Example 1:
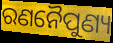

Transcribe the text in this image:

ରଣନୈପୁଣ୍ୟ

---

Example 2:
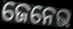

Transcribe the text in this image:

ଜେନେଭ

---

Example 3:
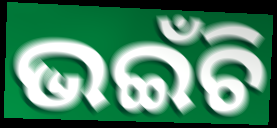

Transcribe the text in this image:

ଭଇଁଚି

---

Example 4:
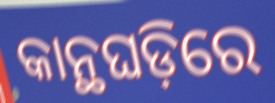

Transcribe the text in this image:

କାନ୍ଥଘଡ଼ିରେ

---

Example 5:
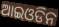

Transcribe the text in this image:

ଆଇଓଡିନ